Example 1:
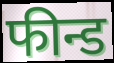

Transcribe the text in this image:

फीन्ड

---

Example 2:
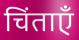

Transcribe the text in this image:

चिंताएँ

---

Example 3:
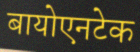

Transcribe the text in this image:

बायोएनटेक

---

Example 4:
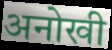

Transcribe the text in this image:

अनोखी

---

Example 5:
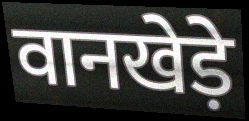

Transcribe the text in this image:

वानखेड़े